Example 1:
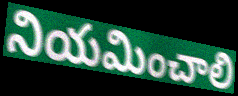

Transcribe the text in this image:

నియమించాలి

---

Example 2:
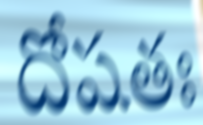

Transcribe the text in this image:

దోషతః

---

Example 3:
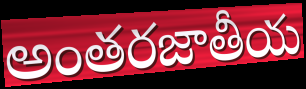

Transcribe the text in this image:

అంతరజాతీయ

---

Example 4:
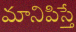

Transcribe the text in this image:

మానిపిస్తే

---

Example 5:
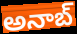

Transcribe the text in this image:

అనాబ్